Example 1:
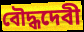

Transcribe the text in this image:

বৌদ্ধদেবী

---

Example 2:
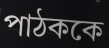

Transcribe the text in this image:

পাঠককে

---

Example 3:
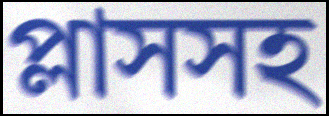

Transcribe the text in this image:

প্লাসসহ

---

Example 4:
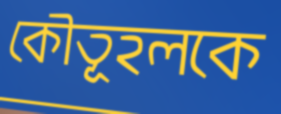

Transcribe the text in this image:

কৌতূহলকে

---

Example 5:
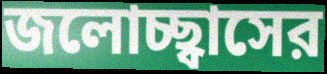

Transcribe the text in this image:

জলোচ্ছ্বাসের